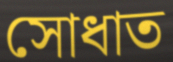
সোধাত